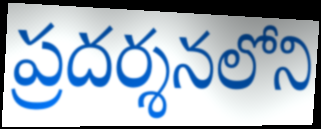
ప్రదర్శనలోని